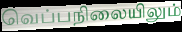
வெப்பநிலையிலும்